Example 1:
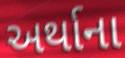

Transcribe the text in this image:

અર્થાના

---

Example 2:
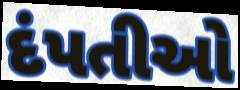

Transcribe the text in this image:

દંપતીઓ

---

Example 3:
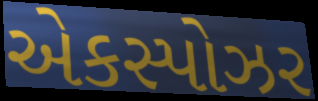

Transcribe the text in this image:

એકસ્પોઝર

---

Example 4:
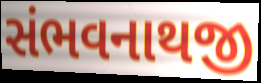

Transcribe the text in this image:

સંભવનાથજી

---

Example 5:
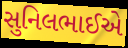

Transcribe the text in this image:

સુનિલભાઈએ